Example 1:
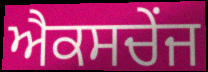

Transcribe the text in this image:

ਐਕਸਚੇਂਜ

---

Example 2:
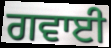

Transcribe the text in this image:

ਗਵਾਈ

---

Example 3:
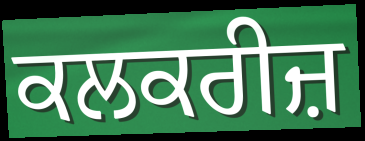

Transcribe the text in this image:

ਕਲਕਰੀਜ਼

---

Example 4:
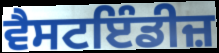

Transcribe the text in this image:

ਵੈਸਟਇੰਡੀਜ਼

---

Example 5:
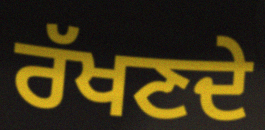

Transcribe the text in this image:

ਰੱਖਣਦੇ